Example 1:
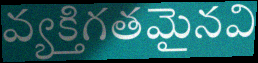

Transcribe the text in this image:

వ్యక్తిగతమైనవి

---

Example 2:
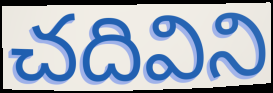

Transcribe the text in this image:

చదివిని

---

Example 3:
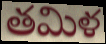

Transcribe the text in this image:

తమిళ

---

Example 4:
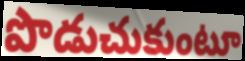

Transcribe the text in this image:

పొడుచుకుంటూ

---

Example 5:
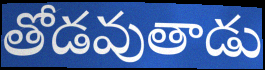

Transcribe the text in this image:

తోడవుతాడు